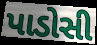
પાડોસી